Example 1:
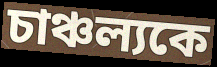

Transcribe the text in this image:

চাঞ্চল্যকে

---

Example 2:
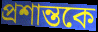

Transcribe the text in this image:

প্রশান্তকে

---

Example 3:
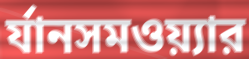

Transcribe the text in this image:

র্যানসমওয়্যার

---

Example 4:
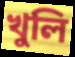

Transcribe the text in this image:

খুলি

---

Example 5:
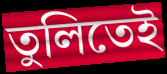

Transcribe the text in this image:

তুলিতেই